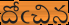
దోఁచిన